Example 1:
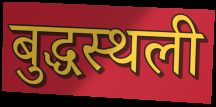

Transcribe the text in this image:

बुद्धस्थली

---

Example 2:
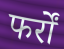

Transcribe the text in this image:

फर्रों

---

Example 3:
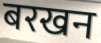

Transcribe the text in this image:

बरखन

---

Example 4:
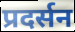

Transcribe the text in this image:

प्रदर्सन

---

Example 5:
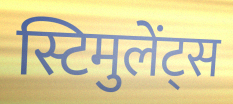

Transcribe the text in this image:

स्टिमुलेंट्स